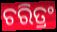
ଚରିତ୍ରଂ